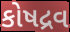
કોષદ્રવ